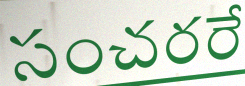
సంచరరే